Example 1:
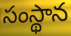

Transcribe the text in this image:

సంస్థాన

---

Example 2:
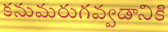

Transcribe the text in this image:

కనుమరుగవ్వడానికి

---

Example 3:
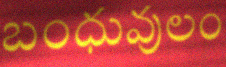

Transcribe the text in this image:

బంధువులం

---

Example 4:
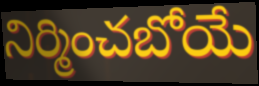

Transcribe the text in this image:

నిర్మించబోయే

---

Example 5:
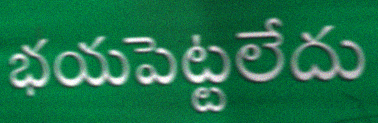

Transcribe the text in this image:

భయపెట్టలేదు